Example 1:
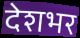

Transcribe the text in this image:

देशभर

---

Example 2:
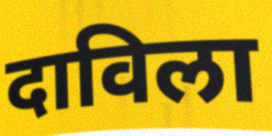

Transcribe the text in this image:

दाविला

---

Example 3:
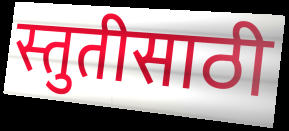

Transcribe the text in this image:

स्तुतीसाठी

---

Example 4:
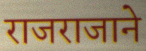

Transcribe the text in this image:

राजराजाने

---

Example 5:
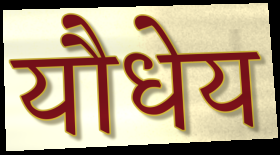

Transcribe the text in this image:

यौधेय